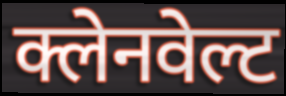
क्लेनवेल्ट